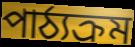
পাঠ্যক্ৰম